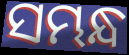
ସମ୍ଭନ୍ଧ